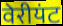
वेरीयंट